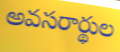
అవసరార్థుల